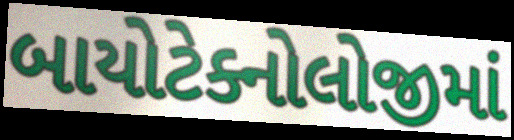
બાયોટેક્નોલોજીમાં